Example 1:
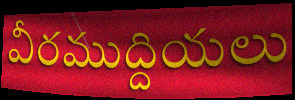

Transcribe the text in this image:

వీరముద్దియలు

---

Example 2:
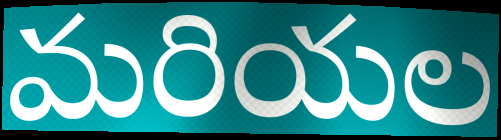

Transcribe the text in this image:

మరియల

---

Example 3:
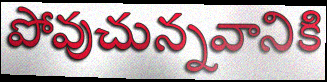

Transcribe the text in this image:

పోవుచున్నవానికి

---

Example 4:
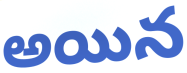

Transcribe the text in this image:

అయిన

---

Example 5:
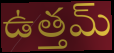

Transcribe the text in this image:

ఉత్తమ్